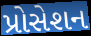
પ્રોસેશન